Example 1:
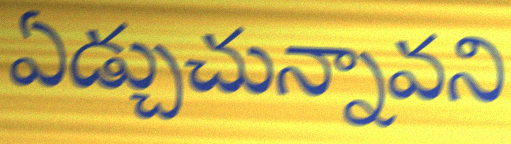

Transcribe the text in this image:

ఏడ్చుచున్నావని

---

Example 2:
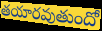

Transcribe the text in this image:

తయారవుతుందో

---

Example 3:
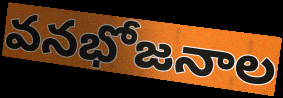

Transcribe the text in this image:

వనభోజనాల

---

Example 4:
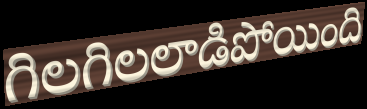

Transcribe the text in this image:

గిలగిలలాడిపోయింది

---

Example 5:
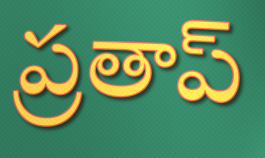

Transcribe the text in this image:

ప్రతాప్